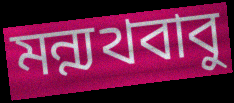
মন্মথবাবু